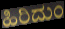
ಹಿರಿದುಂ